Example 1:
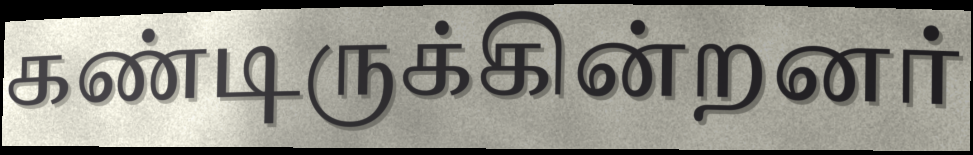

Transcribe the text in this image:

கண்டிருக்கின்றனர்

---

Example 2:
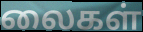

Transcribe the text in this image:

லைகள்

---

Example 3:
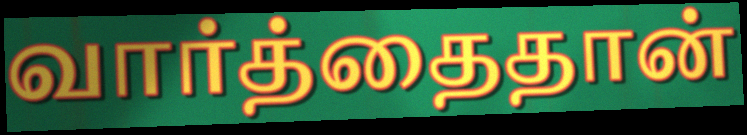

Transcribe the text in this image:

வார்த்தைதான்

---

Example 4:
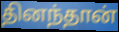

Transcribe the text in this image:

தினந்தான்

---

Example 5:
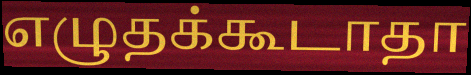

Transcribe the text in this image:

எழுதக்கூடாதா